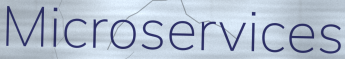
Microservices